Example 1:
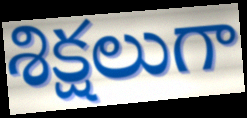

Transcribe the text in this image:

శిక్షలుగా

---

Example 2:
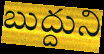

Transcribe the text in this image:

బుద్దుని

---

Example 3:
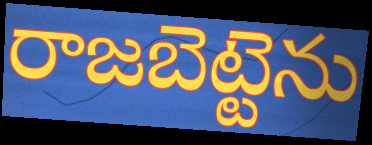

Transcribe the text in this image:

రాజబెట్టెను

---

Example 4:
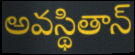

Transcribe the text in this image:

అవస్థితాన్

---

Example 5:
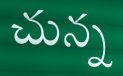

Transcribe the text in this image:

చున్న